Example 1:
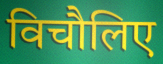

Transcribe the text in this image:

विचौलिए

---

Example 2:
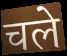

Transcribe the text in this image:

चले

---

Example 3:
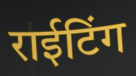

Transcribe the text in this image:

राईटिंग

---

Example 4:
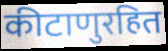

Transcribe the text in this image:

कीटाणुरहित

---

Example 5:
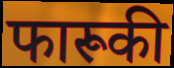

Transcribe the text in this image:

फारूकी